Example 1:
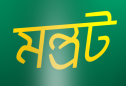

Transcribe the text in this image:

মন্ত্রট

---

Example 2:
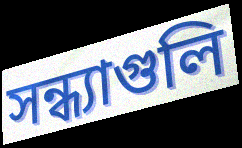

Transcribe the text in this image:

সন্ধ্যাগুলি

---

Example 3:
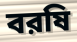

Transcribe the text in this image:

বরষি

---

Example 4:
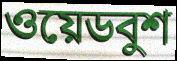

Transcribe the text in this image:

ওয়েডবুশ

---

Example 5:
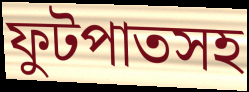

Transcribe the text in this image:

ফুটপাতসহ